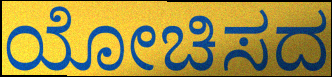
ಯೋಚಿಸದ